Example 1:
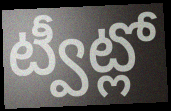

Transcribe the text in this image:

ట్వీట్లో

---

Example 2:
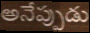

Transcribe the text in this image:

అనేప్పుడు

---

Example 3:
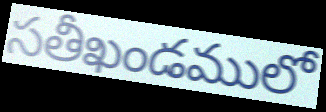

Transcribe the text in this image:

సతీఖండములో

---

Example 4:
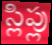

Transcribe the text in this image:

స్లిప్లు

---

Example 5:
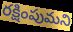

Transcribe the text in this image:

రక్షింపుమని